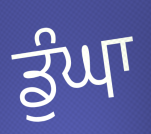
ਡੁੰਘਾ